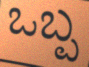
ಒಬ್ಪ